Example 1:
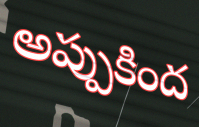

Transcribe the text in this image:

అప్పుకింద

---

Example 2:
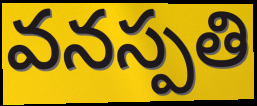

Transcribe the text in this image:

వనస్పతి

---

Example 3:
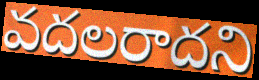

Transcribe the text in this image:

వదలరాదని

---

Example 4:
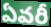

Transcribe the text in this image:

ఏవరీ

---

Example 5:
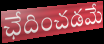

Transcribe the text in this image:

ఛేదించడమే